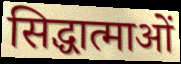
सिद्धात्माओं